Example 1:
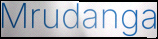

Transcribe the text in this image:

Mrudanga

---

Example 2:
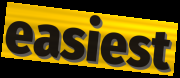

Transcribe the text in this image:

easiest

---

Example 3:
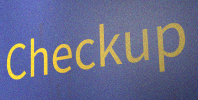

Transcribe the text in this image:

Checkup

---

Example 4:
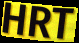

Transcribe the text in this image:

HRT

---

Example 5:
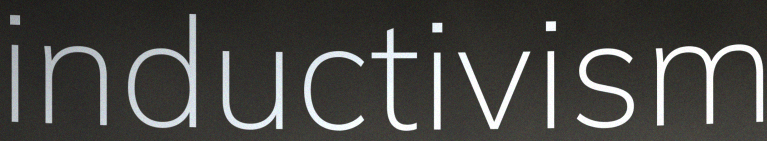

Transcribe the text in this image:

inductivism